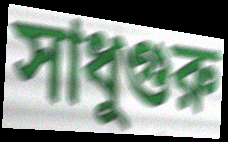
সাধুগুরু